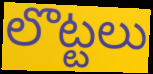
లొట్టలు